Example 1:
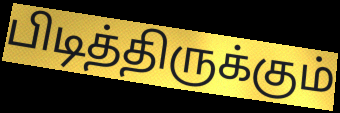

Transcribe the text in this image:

பிடித்திருக்கும்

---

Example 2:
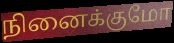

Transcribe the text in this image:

நினைக்குமோ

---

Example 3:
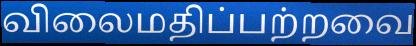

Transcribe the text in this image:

விலைமதிப்பற்றவை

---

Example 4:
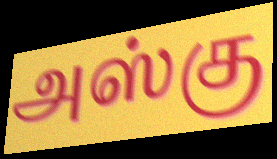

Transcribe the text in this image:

அஸ்கு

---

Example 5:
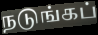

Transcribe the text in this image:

நடுங்கப்